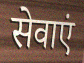
सेवाएं